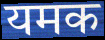
यमक